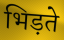
भिड़ते